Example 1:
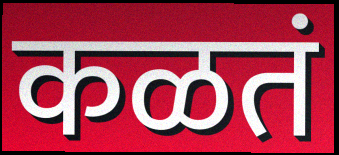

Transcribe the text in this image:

कळतं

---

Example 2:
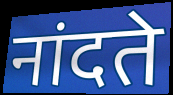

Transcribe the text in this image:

नांदते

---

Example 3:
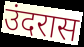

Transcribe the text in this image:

उंदरास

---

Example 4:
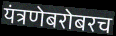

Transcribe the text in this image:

यंत्रणेबरोबरच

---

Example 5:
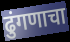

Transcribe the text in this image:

ढुंगणाचा